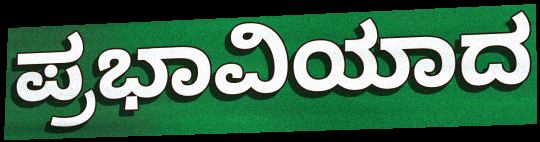
ಪ್ರಭಾವಿಯಾದ